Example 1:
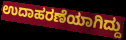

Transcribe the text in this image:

ಉದಾಹರಣೆಯಾಗಿದ್ದು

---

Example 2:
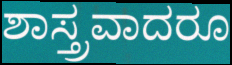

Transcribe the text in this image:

ಶಾಸ್ತ್ರವಾದರೂ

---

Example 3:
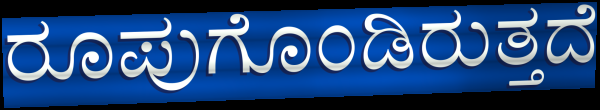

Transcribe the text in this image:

ರೂಪುಗೊಂಡಿರುತ್ತದೆ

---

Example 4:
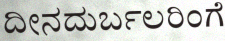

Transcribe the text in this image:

ದೀನದುರ್ಬಲರಿಂಗೆ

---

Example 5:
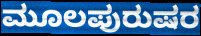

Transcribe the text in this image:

ಮೂಲಪುರುಷರ